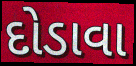
દોડાવા